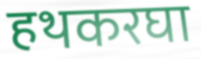
हथकरघा